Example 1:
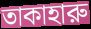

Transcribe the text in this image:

তাকাহারু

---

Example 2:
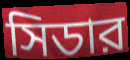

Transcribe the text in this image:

সিডার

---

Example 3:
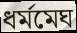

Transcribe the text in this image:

ধর্মমেঘ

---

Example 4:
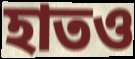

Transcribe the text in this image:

হাতও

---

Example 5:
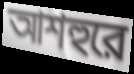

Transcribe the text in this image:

আশহুরে